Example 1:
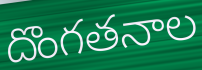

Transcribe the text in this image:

దొంగతనాల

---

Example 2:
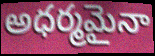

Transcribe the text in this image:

అధర్మమైనా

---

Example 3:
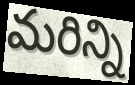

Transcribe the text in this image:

మరిన్ని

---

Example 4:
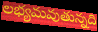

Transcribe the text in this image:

లభ్యమవుతున్నది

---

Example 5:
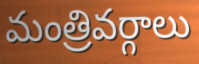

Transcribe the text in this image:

మంత్రివర్గాలు